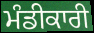
ਮੰਡੀਕਾਰੀ